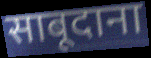
साबूदाना